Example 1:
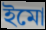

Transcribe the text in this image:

ইমো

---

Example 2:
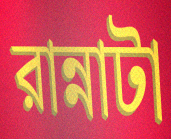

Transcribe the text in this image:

রান্নাটা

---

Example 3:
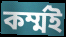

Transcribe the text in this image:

কর্ম্মই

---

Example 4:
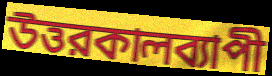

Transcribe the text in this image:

উত্তরকালব্যাপী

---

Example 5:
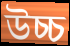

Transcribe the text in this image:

উচ্চ